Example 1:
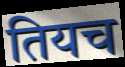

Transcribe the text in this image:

तियच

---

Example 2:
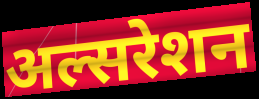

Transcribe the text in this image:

अल्सरेशन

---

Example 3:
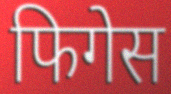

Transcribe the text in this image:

फिगेस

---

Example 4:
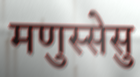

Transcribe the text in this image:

मणुस्सेसु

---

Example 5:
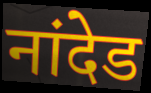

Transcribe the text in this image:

नांदेड